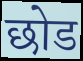
छोड